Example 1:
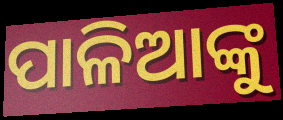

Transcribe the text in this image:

ପାଳିଆଙ୍କୁ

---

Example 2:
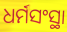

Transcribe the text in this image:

ଧର୍ମସଂସ୍ଥା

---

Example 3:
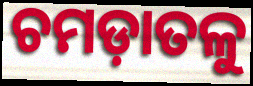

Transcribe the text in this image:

ଚମଡ଼ାତଳୁ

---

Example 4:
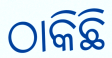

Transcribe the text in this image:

ଠାକିଛି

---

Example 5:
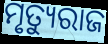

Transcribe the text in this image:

ମୃତ୍ୟୁରାଜ